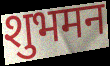
शुभमन